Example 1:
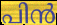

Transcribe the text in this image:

പിൻ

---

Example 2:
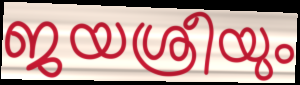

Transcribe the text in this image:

ജയശ്രീയും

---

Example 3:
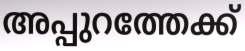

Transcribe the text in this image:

അപ്പുറത്തേക്ക്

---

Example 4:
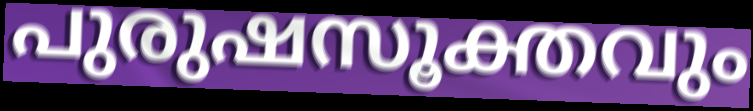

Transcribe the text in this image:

പുരുഷസൂക്തവും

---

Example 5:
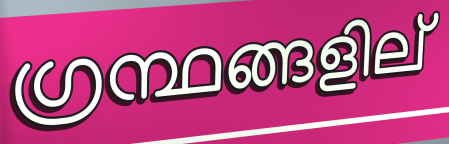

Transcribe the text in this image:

ഗ്രന്ഥങ്ങളില്